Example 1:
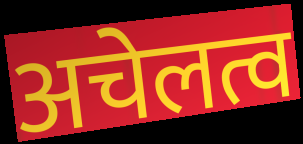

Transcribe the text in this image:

अचेलत्व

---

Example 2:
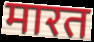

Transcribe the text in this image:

मारत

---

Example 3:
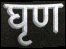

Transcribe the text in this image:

घृण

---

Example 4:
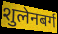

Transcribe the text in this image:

शुलेनबर्ग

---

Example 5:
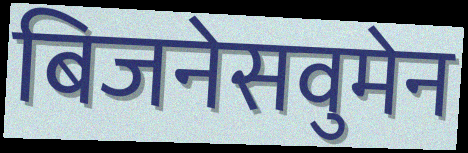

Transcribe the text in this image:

बिजनेसवुमेन